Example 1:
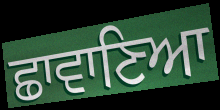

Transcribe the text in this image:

ਛਾਵਾਣਿਆ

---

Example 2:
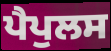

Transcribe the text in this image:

ਪੈਪੁਲਸ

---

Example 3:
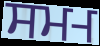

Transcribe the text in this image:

ਸਮ੍ਮ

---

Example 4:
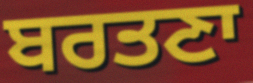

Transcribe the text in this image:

ਬਰਤਣਾ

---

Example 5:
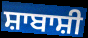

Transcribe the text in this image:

ਸ਼ਾਬਾਸ਼ੀ